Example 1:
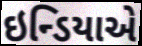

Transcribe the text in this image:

ઇન્ડિયાએ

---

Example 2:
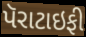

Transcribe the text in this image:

પૅરાટાઇફી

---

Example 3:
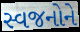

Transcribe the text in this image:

સ્વજનોને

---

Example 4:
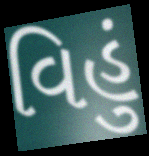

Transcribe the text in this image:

વિહું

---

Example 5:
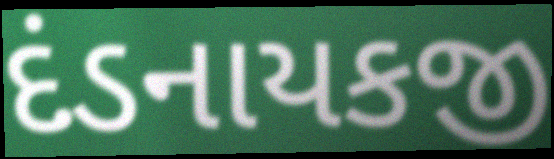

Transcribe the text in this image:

દંડનાયકજી